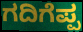
ಗದಿಗೆಪ್ಪ